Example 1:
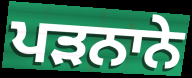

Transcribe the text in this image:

ਪੜਨਾਨੇ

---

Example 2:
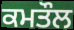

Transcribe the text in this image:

ਕਮਤੌਲ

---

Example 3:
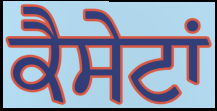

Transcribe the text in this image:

ਕੈਸੇਟਾਂ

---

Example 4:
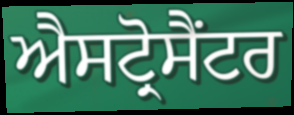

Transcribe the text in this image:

ਐਸਟ੍ਰੋਸੈਂਟਰ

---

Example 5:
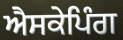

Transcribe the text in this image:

ਐਸਕੇਪਿੰਗ